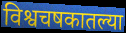
विश्वचषकातल्या